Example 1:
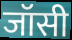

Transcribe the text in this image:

जॉसी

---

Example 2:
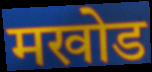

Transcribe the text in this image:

मखोड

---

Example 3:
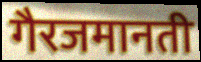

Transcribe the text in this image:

गैरजमानती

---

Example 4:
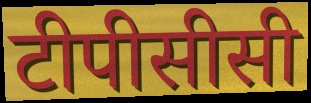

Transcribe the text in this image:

टीपीसीसी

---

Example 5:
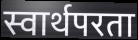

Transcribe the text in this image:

स्वार्थपरता